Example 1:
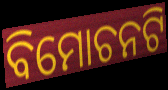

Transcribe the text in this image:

ବିମୋଚନଟି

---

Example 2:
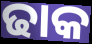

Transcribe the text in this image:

ଢାକ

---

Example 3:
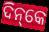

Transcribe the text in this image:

ଦିନ୍‌କେ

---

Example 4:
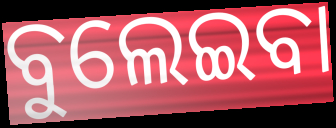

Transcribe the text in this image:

ବୁଲେଇବା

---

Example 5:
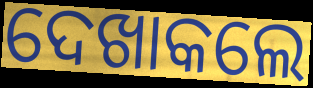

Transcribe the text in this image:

ଦେଖାକଲେ